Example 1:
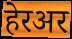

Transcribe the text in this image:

हेरअर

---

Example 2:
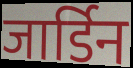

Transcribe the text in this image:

जार्डिन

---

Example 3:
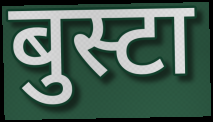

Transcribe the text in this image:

बुस्टा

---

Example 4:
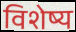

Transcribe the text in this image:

विशेष्य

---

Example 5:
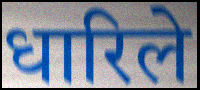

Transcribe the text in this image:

धारिले